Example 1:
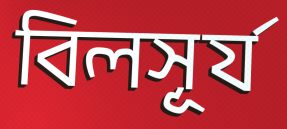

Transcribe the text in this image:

বিলসূর্য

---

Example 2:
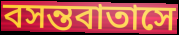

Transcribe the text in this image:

বসন্তবাতাসে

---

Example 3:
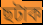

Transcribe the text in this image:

ছটাক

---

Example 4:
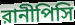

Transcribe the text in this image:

রানীপিসি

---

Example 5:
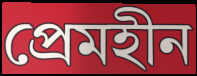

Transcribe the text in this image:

প্রেমহীন